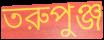
তরুপুঞ্জ